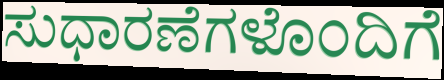
ಸುಧಾರಣೆಗಳೊಂದಿಗೆ